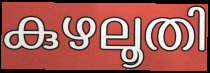
കുഴലൂതി